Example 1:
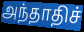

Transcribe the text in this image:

அந்தாதிச்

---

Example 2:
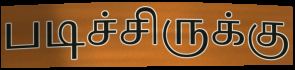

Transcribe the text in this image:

படிச்சிருக்கு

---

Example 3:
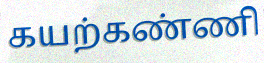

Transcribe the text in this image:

கயற்கண்ணி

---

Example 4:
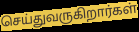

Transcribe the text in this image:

செய்துவருகிறார்கள்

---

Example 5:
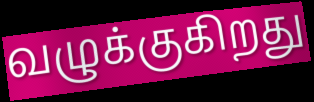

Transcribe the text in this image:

வழுக்குகிறது